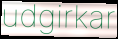
udgirkar